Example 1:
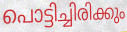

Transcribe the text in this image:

പൊട്ടിച്ചിരിക്കും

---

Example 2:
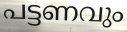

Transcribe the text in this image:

പട്ടണവും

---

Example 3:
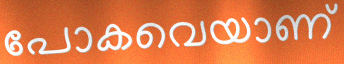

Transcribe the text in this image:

പോകവെയാണ്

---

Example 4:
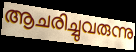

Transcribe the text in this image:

ആചരിച്ചുവരുന്നു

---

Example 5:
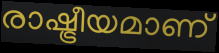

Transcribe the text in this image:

രാഷ്ട്രീയമാണ്